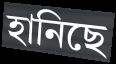
হানিছে